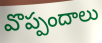
వొప్పందాలు